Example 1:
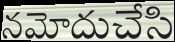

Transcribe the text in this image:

నమోదుచేసి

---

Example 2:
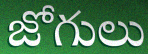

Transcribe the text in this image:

జోగులు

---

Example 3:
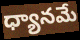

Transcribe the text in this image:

ధ్యానమే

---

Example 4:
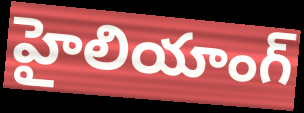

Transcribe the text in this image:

హైలియాంగ్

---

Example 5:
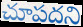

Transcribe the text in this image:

చూపదని